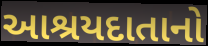
આશ્રયદાતાનો